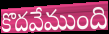
కొదవేముంది